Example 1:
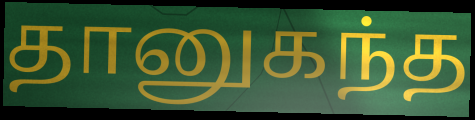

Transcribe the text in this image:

தானுகந்த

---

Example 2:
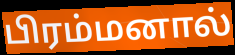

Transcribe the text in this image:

பிரம்மனால்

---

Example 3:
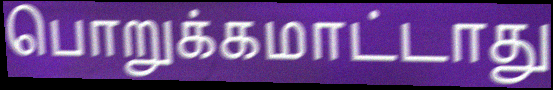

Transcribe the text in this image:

பொறுக்கமாட்டாது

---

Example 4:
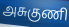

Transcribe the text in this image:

அசுகுணி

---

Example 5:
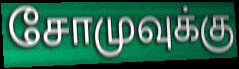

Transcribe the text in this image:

சோமுவுக்கு